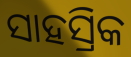
ସାହସ୍ରିକ